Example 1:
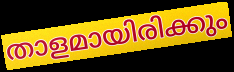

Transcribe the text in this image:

താളമായിരിക്കും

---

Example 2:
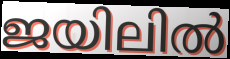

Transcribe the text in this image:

ജയിലിൽ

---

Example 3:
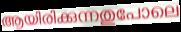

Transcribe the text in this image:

ആയിരിക്കുന്നതുപോലെ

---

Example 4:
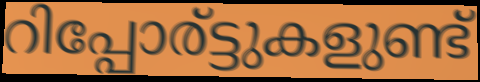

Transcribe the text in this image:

റിപ്പോര്ട്ടുകളുണ്ട്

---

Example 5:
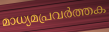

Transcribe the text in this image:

മാധ്യമപ്രവർത്തക